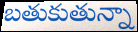
బతుకుతున్నా